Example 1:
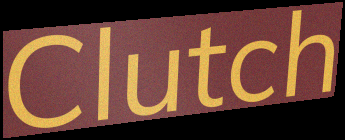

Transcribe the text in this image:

Clutch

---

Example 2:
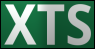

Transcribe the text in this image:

XTS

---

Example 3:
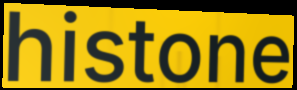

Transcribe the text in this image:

histone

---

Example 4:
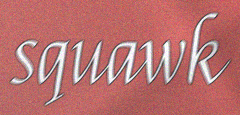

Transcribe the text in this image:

squawk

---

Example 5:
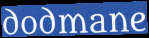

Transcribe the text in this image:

dodmane